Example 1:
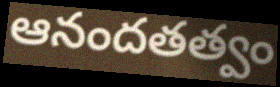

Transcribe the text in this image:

ఆనందతత్వం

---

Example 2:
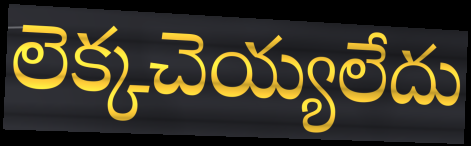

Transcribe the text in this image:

లెక్కచెయ్యలేదు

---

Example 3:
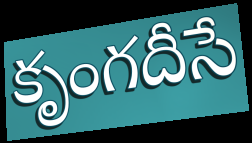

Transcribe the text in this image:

కృంగదీసే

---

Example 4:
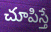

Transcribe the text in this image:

చూపిస్తే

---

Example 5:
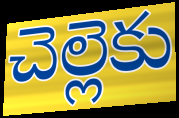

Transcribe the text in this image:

చెల్లెకు